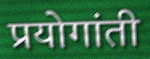
प्रयोगांती